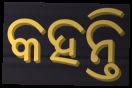
କହନ୍ତି